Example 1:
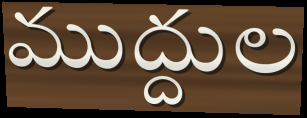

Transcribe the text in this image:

ముద్దుల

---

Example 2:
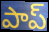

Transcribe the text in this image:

పాప్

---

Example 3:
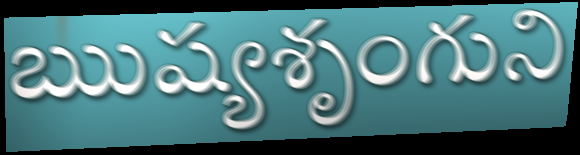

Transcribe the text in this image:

ఋష్యశృంగుని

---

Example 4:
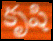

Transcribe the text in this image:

కృషి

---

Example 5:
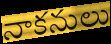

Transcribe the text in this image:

నాకనులు